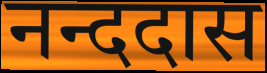
नन्ददास